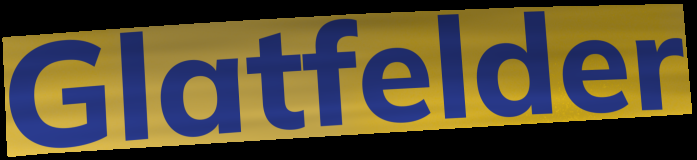
Glatfelder